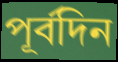
পূর্বদিন